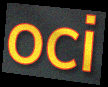
oci